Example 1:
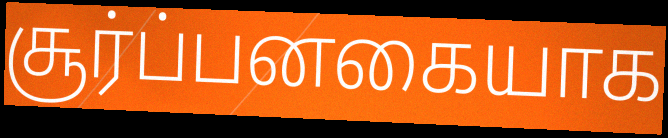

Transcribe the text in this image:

சூர்ப்பனகையாக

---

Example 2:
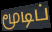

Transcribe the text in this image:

மூடிப்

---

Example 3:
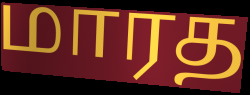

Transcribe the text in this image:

மாரத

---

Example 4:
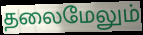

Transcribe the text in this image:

தலைமேலும்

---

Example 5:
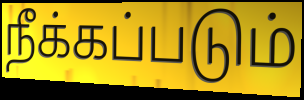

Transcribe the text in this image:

நீக்கப்படும்